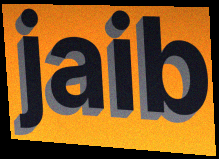
jaib